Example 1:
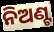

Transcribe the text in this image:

ନିଅଣ୍ଟ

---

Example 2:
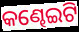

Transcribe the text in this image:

କଣ୍ଢେଇଟି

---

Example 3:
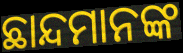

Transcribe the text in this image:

ଛାନ୍ଦମାନଙ୍କ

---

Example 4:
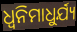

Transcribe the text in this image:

ଧ୍ୱନିମାଧୁର୍ଯ୍ୟ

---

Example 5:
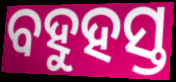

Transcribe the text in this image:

ବହୁହସ୍ତ